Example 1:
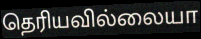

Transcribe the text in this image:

தெரியவில்லையா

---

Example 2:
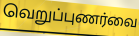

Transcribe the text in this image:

வெறுப்புணர்வை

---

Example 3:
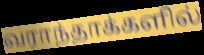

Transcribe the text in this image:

வராந்தாக்களில்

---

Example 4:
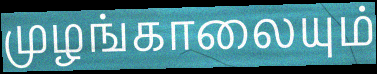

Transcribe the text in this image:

முழங்காலையும்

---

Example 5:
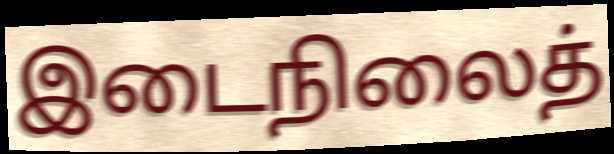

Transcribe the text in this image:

இடைநிலைத்